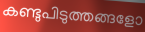
കണ്ടുപിടുത്തങ്ങളോ